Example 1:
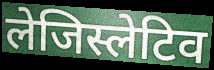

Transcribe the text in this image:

लेजिस्लेटिव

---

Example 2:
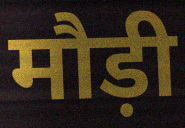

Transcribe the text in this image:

मौड़ी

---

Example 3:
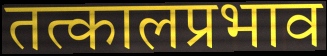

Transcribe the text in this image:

तत्कालप्रभाव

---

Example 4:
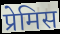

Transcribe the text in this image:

प्रेमिस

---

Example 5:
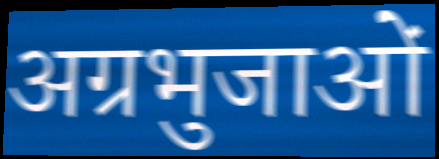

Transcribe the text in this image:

अग्रभुजाओं